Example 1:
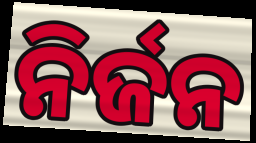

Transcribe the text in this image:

ନିର୍ଜନ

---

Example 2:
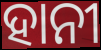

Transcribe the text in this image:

ହାନୀ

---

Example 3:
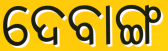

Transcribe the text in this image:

ଦେବାଙ୍ଗ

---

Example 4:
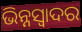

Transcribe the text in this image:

ଭିନ୍ନସ୍ବାଦର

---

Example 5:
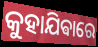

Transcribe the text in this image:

କୁହାଯିଵାରେ